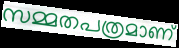
സമ്മതപത്രമാണ്